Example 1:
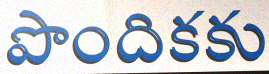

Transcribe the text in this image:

పొందికకు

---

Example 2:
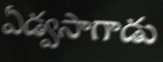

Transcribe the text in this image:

ఏడ్వసాగాడు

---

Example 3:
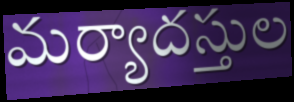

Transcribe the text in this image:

మర్యాదస్తుల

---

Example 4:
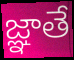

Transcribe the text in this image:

జ్ఞాతే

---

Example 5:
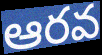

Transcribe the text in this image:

ఆరవ